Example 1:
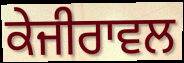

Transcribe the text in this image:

ਕੇਜੀਰਾਵਲ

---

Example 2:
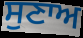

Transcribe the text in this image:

ਸੁਣਾਅ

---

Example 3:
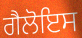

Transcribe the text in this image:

ਗੈਲੋਇਸ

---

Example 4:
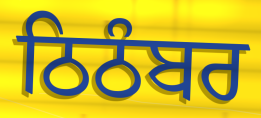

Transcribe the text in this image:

ਠਿਠੰਬਰ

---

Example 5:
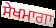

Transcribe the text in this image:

ਸੇਖਮਾਗਾ